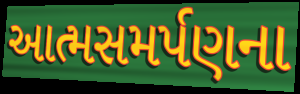
આત્મસમર્પણના